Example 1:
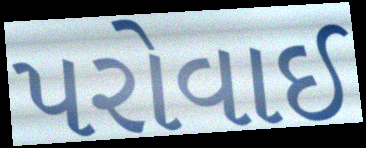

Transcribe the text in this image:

પરોવાઈ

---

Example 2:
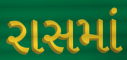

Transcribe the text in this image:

રાસમાં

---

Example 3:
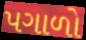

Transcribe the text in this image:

પગાળો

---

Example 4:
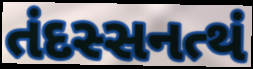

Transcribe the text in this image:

તંદસ્સનત્થં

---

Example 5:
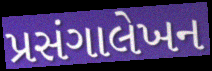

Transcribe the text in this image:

પ્રસંગાલેખન